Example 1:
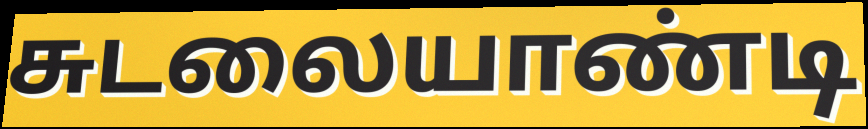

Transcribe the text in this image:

சுடலையாண்டி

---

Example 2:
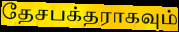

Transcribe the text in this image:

தேசபக்தராகவும்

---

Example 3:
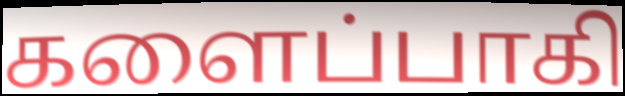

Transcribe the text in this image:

களைப்பாகி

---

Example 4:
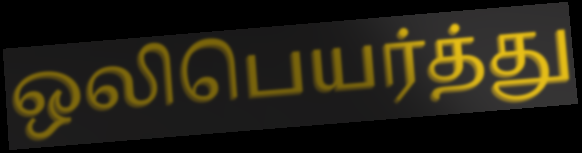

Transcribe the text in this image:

ஒலிபெயர்த்து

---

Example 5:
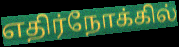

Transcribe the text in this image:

எதிர்நோக்கில்